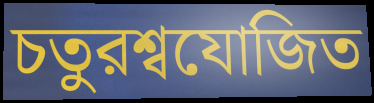
চতুরশ্বযোজিত